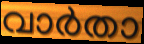
വാർതാ